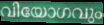
വിയോഗവും